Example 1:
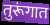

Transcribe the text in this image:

तुरूंगात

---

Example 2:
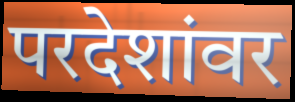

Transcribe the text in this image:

परदेशांवर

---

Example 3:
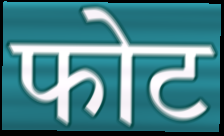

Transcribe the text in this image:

फोट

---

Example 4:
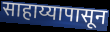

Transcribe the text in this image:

साहाय्यापासून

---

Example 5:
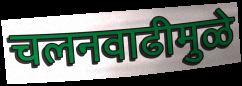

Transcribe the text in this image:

चलनवाढीमुळे